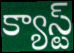
క్యాస్ట్